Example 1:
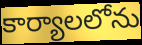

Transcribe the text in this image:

కార్యాలలోను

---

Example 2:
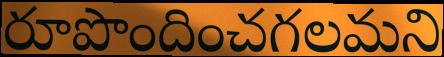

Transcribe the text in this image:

రూపొందించగలమని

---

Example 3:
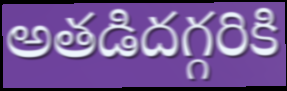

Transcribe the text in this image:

అతడిదగ్గరికి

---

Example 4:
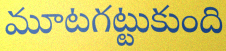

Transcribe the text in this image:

మూటగట్టుకుంది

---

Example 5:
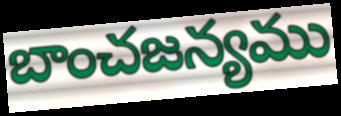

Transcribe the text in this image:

బాంచజన్యము